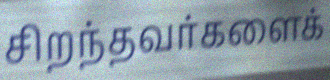
சிறந்தவர்களைக்